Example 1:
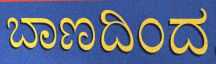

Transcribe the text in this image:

ಬಾಣದಿಂದ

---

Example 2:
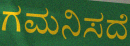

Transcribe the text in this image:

ಗಮನಿಸದೆ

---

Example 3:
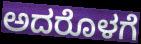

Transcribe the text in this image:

ಅದರೊಳಗೆ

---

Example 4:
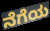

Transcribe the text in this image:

ನೆಗೆಯ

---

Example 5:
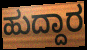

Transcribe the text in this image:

ಹುದ್ದಾರ